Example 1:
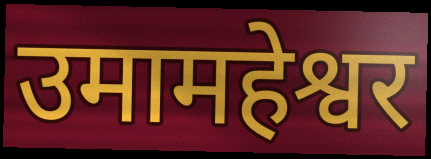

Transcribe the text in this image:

उमामहेश्वर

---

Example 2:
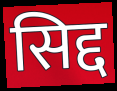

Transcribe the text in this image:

सिद्द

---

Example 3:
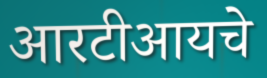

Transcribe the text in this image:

आरटीआयचे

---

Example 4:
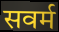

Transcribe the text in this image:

सवर्म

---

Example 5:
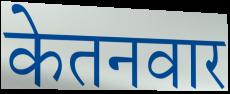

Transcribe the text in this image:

केतनवार